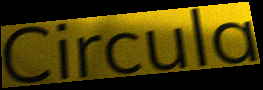
Circula